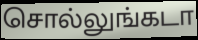
சொல்லுங்கடா